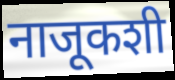
नाजूकशी